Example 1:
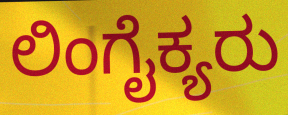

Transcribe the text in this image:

ಲಿಂಗೈಕ್ಯರು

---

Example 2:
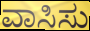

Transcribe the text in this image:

ವಾಸಿಸು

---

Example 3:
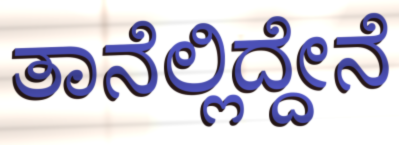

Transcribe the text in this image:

ತಾನೆಲ್ಲಿದ್ದೇನೆ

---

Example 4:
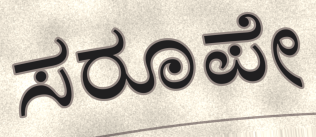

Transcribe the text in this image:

ಸರೂಪೇ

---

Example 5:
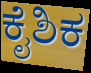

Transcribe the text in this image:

ಕೈಶಿಕ